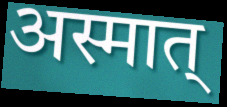
अस्मात्